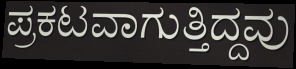
ಪ್ರಕಟವಾಗುತ್ತಿದ್ದವು